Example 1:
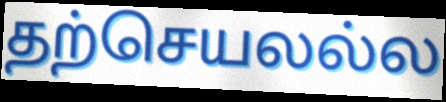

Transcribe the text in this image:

தற்செயலல்ல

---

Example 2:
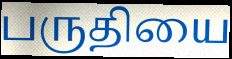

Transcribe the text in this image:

பருதியை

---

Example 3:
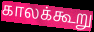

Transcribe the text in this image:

காலக்கூறு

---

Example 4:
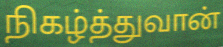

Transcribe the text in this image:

நிகழ்த்துவான்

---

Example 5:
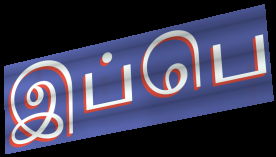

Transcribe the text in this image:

இப்பெ